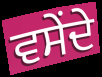
ਵਸੇਂਦੇ